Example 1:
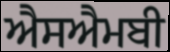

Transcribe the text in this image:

ਐਸਐਮਬੀ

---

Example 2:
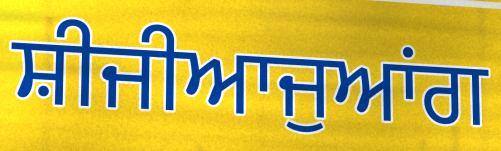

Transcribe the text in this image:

ਸ਼ੀਜੀਆਜੁਆਂਗ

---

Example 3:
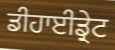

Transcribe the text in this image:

ਡੀਹਾਈਡ੍ਰੇਟ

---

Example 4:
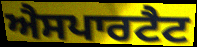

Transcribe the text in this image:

ਐਸਪਾਰਟੈਟ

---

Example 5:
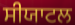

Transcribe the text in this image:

ਸੀਯਾਟਲ